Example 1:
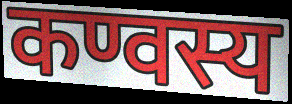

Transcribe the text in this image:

कण्वस्य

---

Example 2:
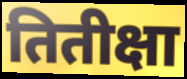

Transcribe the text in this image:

तितीक्षा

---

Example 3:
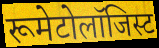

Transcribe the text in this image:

रूमेटोलॉजिस्ट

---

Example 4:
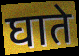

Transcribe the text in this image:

घाते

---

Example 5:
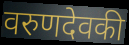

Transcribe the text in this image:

वरुणदेवकी